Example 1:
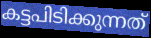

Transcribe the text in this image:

കട്ടപിടിക്കുന്നത്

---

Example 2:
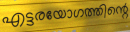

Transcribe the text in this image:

എട്ടരയോഗത്തിന്റെ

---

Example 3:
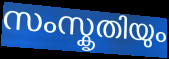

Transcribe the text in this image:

സംസ്കൃതിയും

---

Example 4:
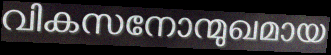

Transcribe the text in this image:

വികസനോന്മുഖമായ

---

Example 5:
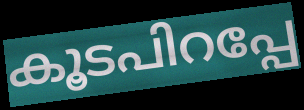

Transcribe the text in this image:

കൂടപിറപ്പേ